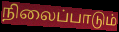
நிலைப்பாடும்